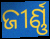
ଜୀର୍ଣ୍ଣ